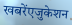
खबरेंएजुकेशन